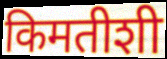
किमतीशी